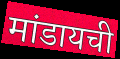
मांडायची